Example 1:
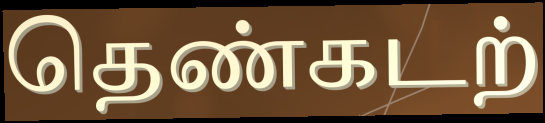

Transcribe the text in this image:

தெண்கடற்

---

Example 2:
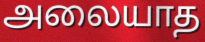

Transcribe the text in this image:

அலையாத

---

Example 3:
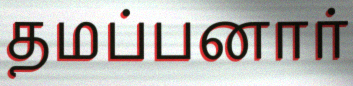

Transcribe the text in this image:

தமப்பனார்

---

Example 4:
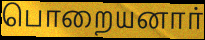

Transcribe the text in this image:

பொறையனார்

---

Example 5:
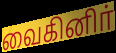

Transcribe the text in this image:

வைகினிர்